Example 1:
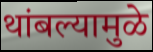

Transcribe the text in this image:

थांबल्यामुळे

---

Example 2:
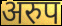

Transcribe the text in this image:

अरुप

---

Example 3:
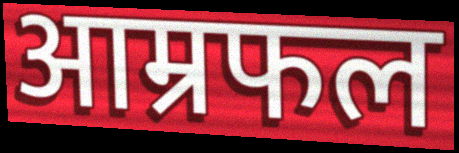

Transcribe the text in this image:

आम्रफल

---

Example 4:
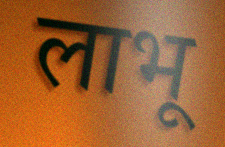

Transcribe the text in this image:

लाभू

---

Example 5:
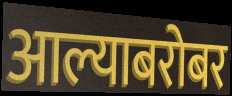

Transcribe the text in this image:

आल्याबरोबर